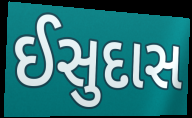
ઈસુદાસ